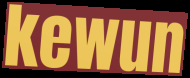
kewun